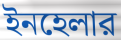
ইনহেলার